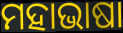
ମହାଭାଷା